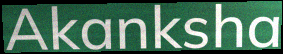
Akanksha